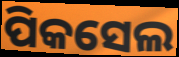
ପିକସେଲ